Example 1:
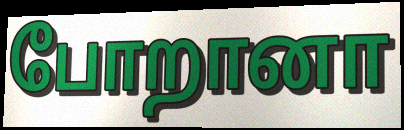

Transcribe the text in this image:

போறானா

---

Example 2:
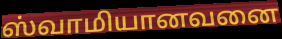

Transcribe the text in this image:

ஸ்வாமியானவனை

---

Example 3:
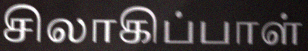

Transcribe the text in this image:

சிலாகிப்பாள்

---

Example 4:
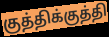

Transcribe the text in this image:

குத்திக்குத்தி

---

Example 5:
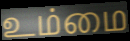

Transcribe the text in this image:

உம்மை